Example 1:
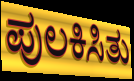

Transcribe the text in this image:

ಪುಲಕಿಸಿತು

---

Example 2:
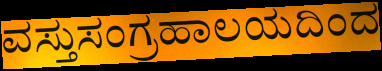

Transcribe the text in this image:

ವಸ್ತುಸಂಗ್ರಹಾಲಯದಿಂದ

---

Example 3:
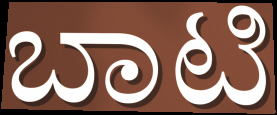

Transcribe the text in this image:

ಬಾಟಿ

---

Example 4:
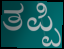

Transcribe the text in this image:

ತಪ್ಪಿ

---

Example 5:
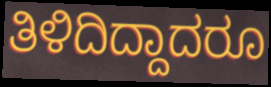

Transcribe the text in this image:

ತಿಳಿದಿದ್ದಾದರೂ